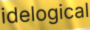
idelogical